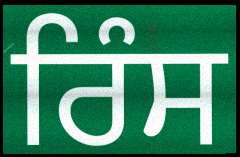
ਰਿੰਸ